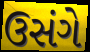
ઉસંગે